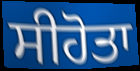
ਸੀਹੋਤਾ